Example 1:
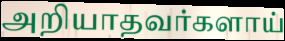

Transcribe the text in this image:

அறியாதவர்களாய்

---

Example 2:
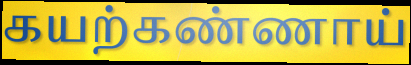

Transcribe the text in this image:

கயற்கண்ணாய்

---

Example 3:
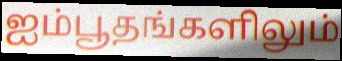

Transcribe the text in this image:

ஐம்பூதங்களிலும்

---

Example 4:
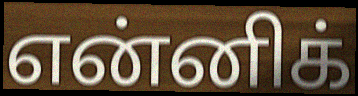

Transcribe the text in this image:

என்னிக்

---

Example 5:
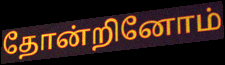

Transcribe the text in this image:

தோன்றினோம்